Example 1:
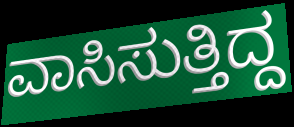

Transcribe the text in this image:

ವಾಸಿಸುತ್ತಿದ್ದ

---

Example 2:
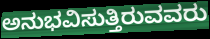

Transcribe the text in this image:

ಅನುಭವಿಸುತ್ತಿರುವವರು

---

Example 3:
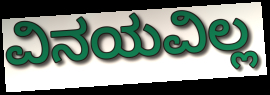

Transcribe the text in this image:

ವಿನಯವಿಲ್ಲ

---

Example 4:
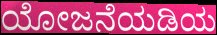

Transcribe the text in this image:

ಯೋಜನೆಯಡಿಯ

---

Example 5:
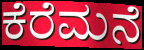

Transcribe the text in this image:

ಕೆರೆಮನೆ